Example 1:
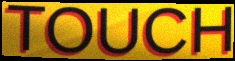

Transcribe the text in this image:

TOUCH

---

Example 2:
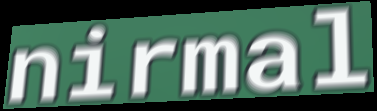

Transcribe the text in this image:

nirmal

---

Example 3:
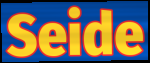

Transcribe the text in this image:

Seide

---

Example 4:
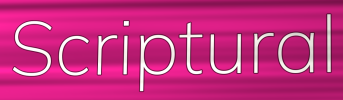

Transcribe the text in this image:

Scriptural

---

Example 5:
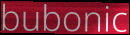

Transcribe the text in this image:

bubonic